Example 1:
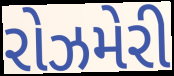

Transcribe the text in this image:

રોઝમેરી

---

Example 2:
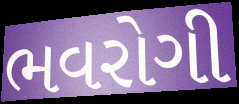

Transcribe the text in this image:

ભવરોગી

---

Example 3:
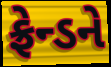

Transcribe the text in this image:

ફ્રેન્ડને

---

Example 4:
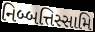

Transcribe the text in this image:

નિબ્બત્તિસ્સામિ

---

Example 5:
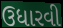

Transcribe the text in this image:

ઉધારવી